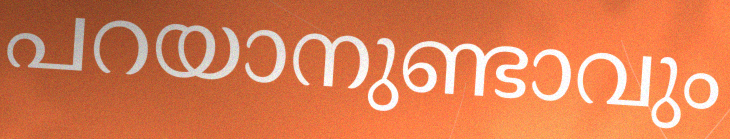
പറയാനുണ്ടാവും